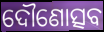
ଦୌଣୋତ୍ସବ